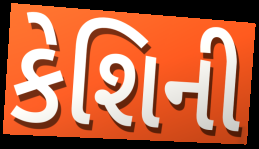
કેશિની